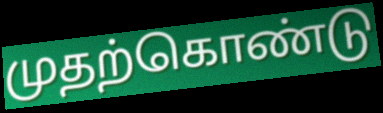
முதற்கொண்டு